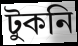
টুকনি